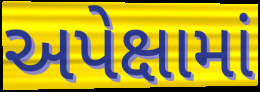
અપેક્ષામાં